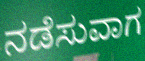
ನಡೆಸುವಾಗ